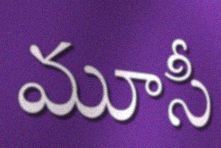
మూసీ